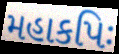
મહાકપિઃ